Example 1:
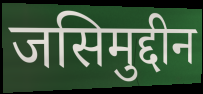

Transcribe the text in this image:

जसिमुद्दीन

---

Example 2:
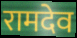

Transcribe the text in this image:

रामदेव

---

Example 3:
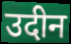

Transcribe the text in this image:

उदीन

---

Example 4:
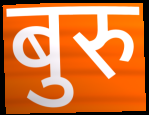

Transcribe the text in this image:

बुरु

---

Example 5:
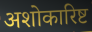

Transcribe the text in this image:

अशोकारिष्ट